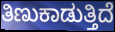
ತಿಣುಕಾಡುತ್ತಿದೆ